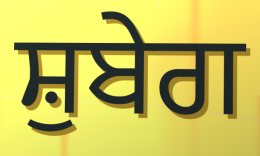
ਸ਼ੁਬੇਗ